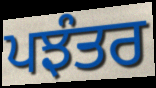
ਪਝੰਤਰ